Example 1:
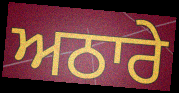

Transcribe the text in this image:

ਅਠਾਰੇ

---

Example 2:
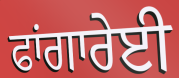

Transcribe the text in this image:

ਫਾਂਗਾਰੇਈ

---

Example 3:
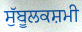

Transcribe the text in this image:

ਸੁੱਬੂਲਕਸ਼ਮੀ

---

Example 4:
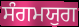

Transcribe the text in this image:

ਸੰਗਮਯੁਗ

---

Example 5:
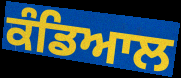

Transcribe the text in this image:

ਕੰਡਿਆਲ